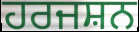
ਹਰਜਸ਼ਨ